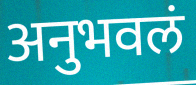
अनुभवलं